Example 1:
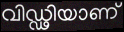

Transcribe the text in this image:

വിഡ്ഢിയാണ്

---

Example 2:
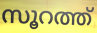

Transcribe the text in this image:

സൂറത്ത്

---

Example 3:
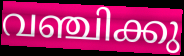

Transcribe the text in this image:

വഞ്ചിക്കു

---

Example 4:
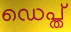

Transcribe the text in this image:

ഡെപ്ത്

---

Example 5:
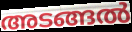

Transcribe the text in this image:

അടങ്ങൽ